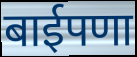
बाईपणा